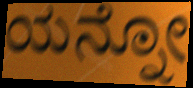
ಯನ್ನೋ